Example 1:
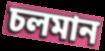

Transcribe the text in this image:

চলমান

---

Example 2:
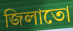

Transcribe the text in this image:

জিলাতো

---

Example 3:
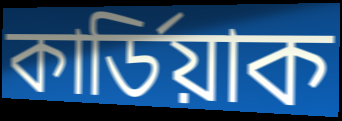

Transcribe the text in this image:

কাৰ্ডিয়াক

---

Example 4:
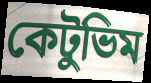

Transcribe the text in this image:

কেটুভিম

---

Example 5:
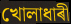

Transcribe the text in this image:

খোলাধাৰী